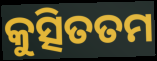
କୁତ୍ସିତତମ